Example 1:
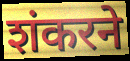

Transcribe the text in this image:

शंकरने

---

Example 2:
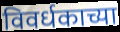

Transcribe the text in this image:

विवर्धकाच्या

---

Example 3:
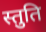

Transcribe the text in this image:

स्तुति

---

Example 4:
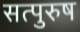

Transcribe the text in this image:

सत्पुरुष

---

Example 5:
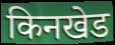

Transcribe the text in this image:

किनखेड